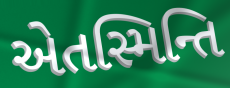
એતસ્મિન્તિ